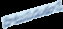
పాటుపడుతూనే